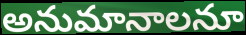
అనుమానాలనూ